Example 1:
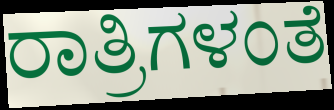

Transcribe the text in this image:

ರಾತ್ರಿಗಳಂತೆ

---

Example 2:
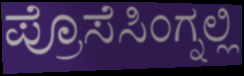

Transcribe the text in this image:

ಪ್ರೊಸೆಸಿಂಗ್ನಲ್ಲಿ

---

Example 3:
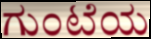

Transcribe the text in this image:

ಗುಂಟೆಯ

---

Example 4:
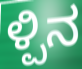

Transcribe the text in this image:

ಳ್ಪಿನ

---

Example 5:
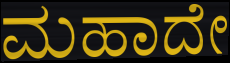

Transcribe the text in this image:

ಮಹಾದೇ